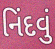
નિંદવું